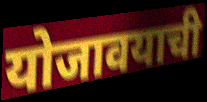
योजावयाची